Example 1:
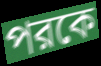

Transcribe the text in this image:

পরকে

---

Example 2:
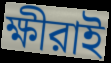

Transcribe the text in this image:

ক্ষীরাই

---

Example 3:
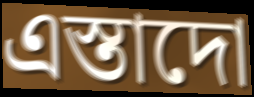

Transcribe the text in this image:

এস্তাদো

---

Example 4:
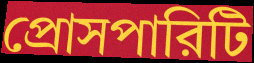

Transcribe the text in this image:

প্রোসপারিটি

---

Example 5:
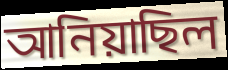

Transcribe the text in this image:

আনিয়াছিল